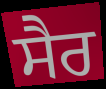
ਸੈਰ